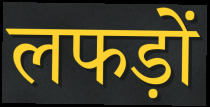
लफड़ों